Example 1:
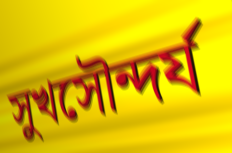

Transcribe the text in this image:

সুখসৌন্দর্য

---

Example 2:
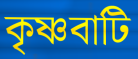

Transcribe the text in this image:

কৃষ্ণবাটি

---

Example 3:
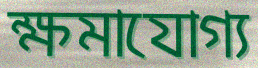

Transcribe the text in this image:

ক্ষমাযোগ্য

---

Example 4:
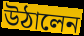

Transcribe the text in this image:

উঠালেন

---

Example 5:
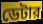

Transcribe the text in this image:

ডেটার